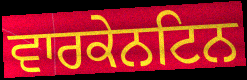
ਵਾਰਕੇਨਟਿਨ